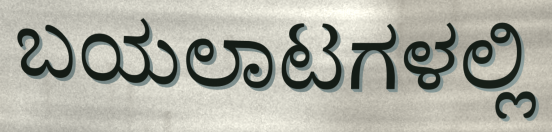
ಬಯಲಾಟಗಳಲ್ಲಿ